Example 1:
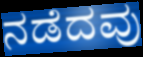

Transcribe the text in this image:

ನಡೆದವು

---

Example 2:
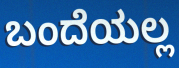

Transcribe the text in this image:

ಬಂದೆಯಲ್ಲ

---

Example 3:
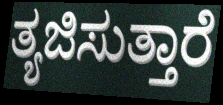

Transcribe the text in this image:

ತ್ಯಜಿಸುತ್ತಾರೆ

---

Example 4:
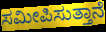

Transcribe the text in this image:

ಸಮೀಪಿಸುತ್ತಾನೆ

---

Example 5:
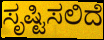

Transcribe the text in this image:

ಸೃಷ್ಟಿಸಲಿದೆ